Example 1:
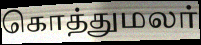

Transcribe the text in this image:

கொத்துமலர்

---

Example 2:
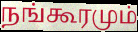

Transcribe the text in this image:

நங்கூரமும்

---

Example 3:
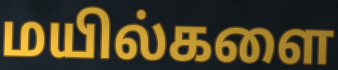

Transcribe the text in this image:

மயில்களை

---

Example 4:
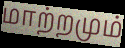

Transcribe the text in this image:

மாற்றமும்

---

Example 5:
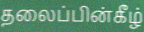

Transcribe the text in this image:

தலைப்பின்கீழ்